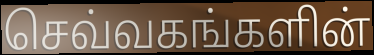
செவ்வகங்களின்